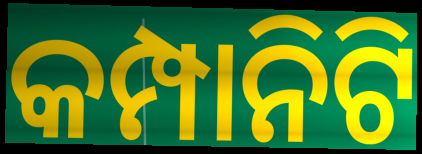
କମ୍ପାନିଟି